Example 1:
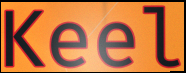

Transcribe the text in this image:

Keel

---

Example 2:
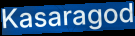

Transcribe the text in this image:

Kasaragod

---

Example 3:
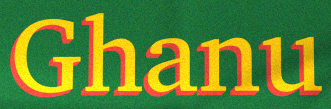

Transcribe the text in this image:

Ghanu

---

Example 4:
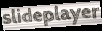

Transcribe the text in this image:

slideplayer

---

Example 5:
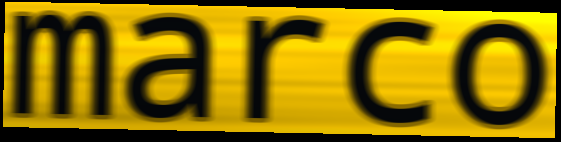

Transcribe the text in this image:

marco